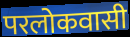
परलोकवासी